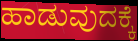
ಹಾಡುವುದಕ್ಕೆ